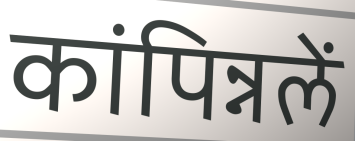
कांपिन्नलें